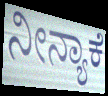
ನೀನ್ಯಾಕೆ